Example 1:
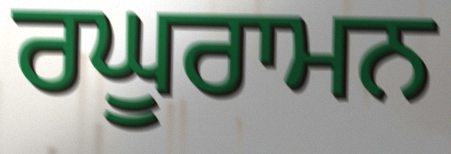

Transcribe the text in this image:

ਰਘੂਰਾਮਨ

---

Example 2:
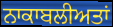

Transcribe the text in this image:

ਨਾਕਾਬਲੀਅਤਾਂ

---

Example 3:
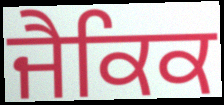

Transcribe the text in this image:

ਜੈਕਿਕ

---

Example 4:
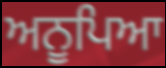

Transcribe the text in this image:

ਅਨੂਪਿਆ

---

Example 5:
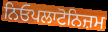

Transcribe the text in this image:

ਨਿਓਪਲਾਟੋਨਿਜ਼ਮ